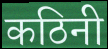
कठिनी